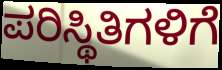
ಪರಿಸ್ಥಿತಿಗಳಿಗೆ